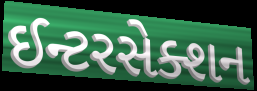
ઈન્ટરસેક્શન